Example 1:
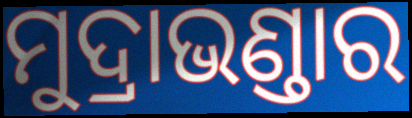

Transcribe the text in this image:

ମୁଦ୍ରାଭଣ୍ଡାର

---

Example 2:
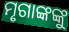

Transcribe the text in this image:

ମୃଗାଙ୍କଙ୍କୁ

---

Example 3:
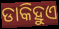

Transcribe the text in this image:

ଡାକିହୁଏ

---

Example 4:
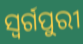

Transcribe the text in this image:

ସ୍ଵର୍ଗପୁରୀ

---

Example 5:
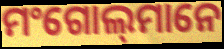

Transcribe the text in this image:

ମଂଗୋଲ୍‍ମାନେ